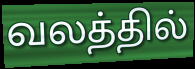
வலத்தில்